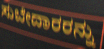
ಸುಬೇದಾರರನ್ನು